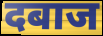
दबाज